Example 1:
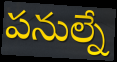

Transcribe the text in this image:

పనుల్నే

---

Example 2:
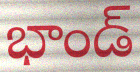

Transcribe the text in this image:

భాండ్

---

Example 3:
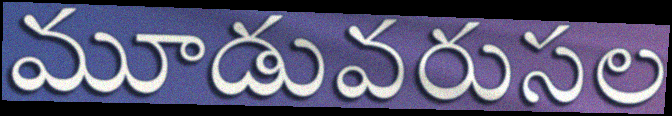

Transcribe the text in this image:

మూడువరుసల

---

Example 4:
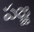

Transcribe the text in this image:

పజ్జ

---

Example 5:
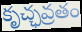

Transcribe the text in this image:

కృచ్ఛవ్రతం